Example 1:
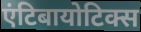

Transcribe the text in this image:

एंटिबायोटिक्स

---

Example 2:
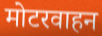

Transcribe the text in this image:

मोटरवाहन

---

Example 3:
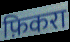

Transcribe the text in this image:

फ़िकरा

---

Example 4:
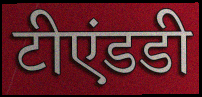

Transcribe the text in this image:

टीएंडडी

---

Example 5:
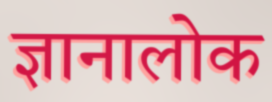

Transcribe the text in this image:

ज्ञानालोक